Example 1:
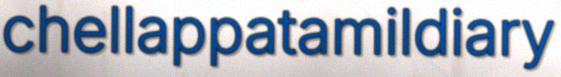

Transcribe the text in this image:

chellappatamildiary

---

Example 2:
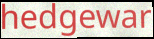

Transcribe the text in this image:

hedgewar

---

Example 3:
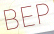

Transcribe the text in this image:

BEP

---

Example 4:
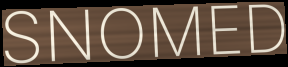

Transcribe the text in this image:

SNOMED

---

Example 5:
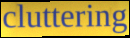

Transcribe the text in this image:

cluttering